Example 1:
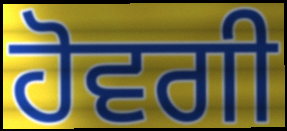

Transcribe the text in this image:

ਹੋਵਗੀ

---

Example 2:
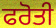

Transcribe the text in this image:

ਫਰੋਤੀ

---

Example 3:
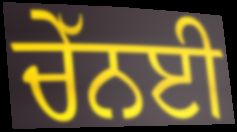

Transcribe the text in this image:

ਚੇੱਨਈ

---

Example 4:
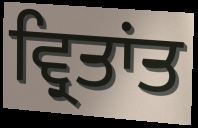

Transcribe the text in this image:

ਵ੍ਰਿਤਾਂਤ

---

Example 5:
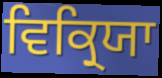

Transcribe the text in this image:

ਵਿਕ੍ਰਿਯਾ